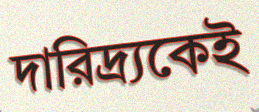
দারিদ্র্যকেই